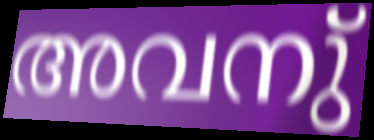
അവനു്